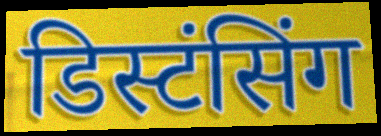
डिस्टंसिंग